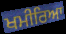
ਖਮੀਰਿਆ